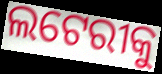
ଲଟେରୀକୁ